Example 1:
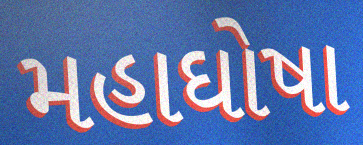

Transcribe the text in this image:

મહાઘોષા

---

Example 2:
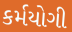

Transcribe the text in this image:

કર્મયોગી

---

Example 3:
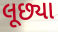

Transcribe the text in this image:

લૂછ્યા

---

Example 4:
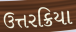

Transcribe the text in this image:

ઉત્તરક્રિયા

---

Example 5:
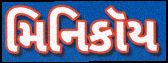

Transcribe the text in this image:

મિનિકૉય